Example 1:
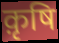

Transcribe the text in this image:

क़ृषि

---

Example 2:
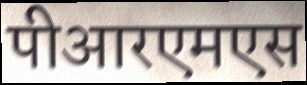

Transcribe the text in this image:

पीआरएमएस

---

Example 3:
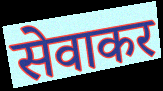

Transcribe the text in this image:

सेवाकर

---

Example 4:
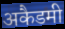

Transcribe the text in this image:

अकैडमी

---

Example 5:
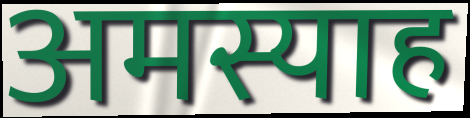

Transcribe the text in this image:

अमस्याह